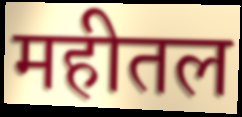
महीतल